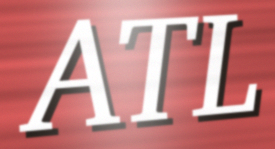
ATL